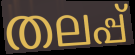
തലപ്പ്